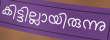
കിട്ടില്ലായിരുന്നു